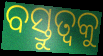
ବସ୍ତୁତ୍ଵକୁ